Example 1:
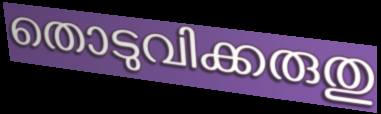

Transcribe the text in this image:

തൊടുവിക്കരുതു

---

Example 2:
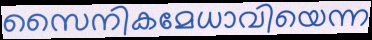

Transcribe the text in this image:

സൈനികമേധാവിയെന്ന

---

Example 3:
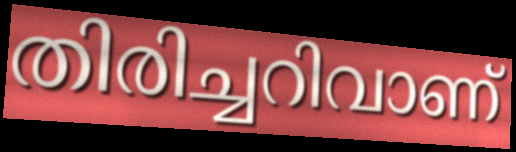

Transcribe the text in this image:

തിരിച്ചറിവാണ്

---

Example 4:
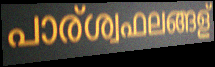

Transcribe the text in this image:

പാര്ശ്വഫലങ്ങള്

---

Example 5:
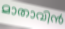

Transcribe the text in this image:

മാതാവിൻ